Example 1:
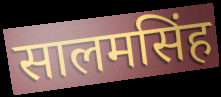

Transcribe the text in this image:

सालमसिंह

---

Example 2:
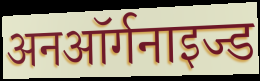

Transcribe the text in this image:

अनऑर्गनाइज्ड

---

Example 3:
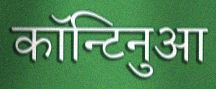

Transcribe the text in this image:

कॉन्टिनुआ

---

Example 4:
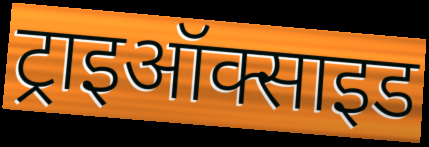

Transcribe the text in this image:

ट्राइऑक्साइड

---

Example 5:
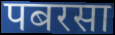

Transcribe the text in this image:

पबरसा